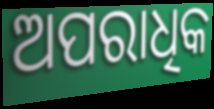
ଅପରାଧିକ